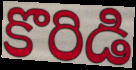
కొరిడి